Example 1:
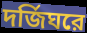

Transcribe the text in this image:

দর্জিঘরে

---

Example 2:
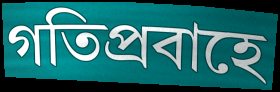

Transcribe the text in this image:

গতিপ্রবাহে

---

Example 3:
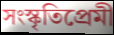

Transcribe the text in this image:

সংস্কৃতিপ্রেমী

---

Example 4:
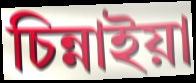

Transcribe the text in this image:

চিন্নাইয়া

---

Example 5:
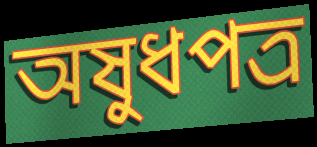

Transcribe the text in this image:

অষুধপত্র